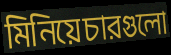
মিনিয়েচারগুলো